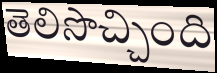
తెలిసొచ్చింది